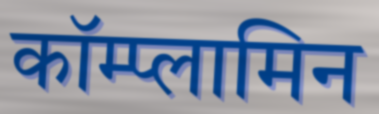
कॉम्प्लामिन